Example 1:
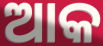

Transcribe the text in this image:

ଆକ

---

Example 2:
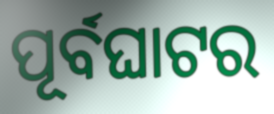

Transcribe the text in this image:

ପୂର୍ବଘାଟର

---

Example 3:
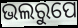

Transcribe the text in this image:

ଭଲରୁପେ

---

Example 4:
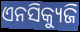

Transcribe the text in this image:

ଏନସିକ୍ୟୁଜି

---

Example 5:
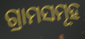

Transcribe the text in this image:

ଗ୍ରାମସମୂହ